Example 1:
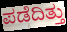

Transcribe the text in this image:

ಪಡೆದಿತ್ತು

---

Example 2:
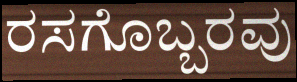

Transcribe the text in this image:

ರಸಗೊಬ್ಬರವು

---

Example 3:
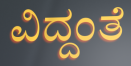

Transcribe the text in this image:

ವಿದ್ದಂತೆ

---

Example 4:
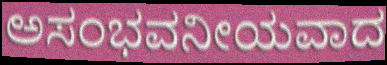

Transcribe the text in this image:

ಅಸಂಭವನೀಯವಾದ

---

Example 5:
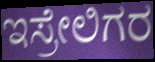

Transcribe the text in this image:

ಇಸ್ರೇಲಿಗರ